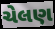
ચેલણ